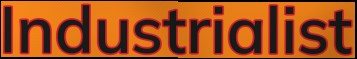
Industrialist